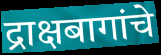
द्राक्षबागांचे